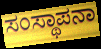
ಸಂಸ್ಥಾಪನಾ